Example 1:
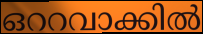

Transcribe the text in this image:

ഒററവാക്കിൽ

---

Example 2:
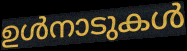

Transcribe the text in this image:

ഉൾനാടുകൾ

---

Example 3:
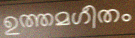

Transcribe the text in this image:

ഉത്തമഗീതം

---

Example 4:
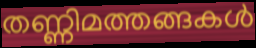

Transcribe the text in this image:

തണ്ണിമത്തങ്ങകൾ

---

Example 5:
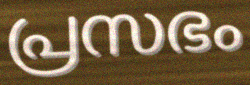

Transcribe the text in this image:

പ്രസഭം